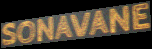
SONAVANE